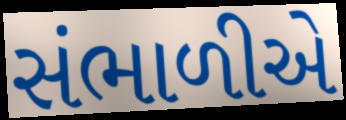
સંભાળીએ